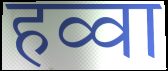
हव्वा